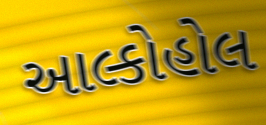
આલ્કોહોલ